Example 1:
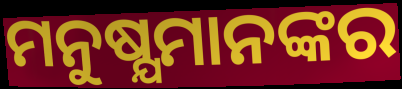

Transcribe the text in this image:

ମନୁଷ୍ଯମାନଙ୍କର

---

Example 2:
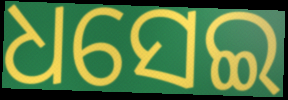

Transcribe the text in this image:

ଧସେଇ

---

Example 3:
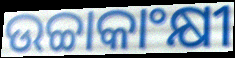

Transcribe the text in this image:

ଉଚ୍ଚାକାଂକ୍ଷୀ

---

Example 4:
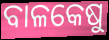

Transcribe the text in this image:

ବାଳକେଷୁ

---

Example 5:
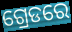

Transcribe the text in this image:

ଗ୍ରେଡରେ